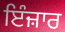
ਇੰਜ਼ਾਰ